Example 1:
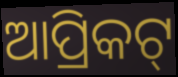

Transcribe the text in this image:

ଆପ୍ରିକଟ୍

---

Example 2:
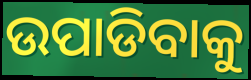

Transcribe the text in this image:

ଉପାଡିବାକୁ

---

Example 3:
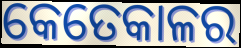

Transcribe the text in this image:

କେତେକାଳର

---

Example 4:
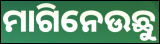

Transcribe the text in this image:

ମାଗିନେଉଛୁ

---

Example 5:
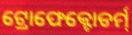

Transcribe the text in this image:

ଟ୍ରୋଫେକ୍ଟୋଡର୍ମ୍